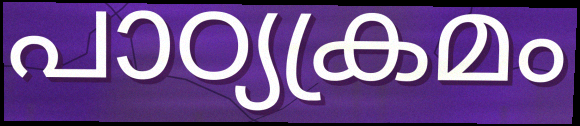
പാഠ്യക്രമം